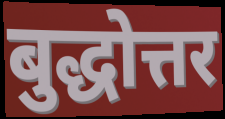
बुद्धोत्तर